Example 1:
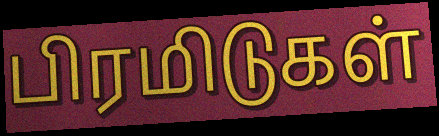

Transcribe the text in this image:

பிரமிடுகள்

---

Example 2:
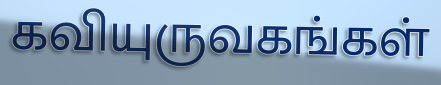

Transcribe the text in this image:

கவியுருவகங்கள்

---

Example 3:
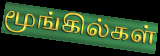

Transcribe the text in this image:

மூங்கில்கள்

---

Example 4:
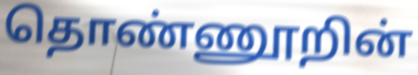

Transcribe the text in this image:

தொண்ணூறின்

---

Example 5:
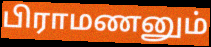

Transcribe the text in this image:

பிராமணனும்